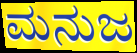
ಮನುಜ